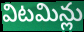
విటమిన్లు